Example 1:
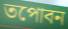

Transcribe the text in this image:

তপোবন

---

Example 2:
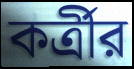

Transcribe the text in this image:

কর্ত্রীর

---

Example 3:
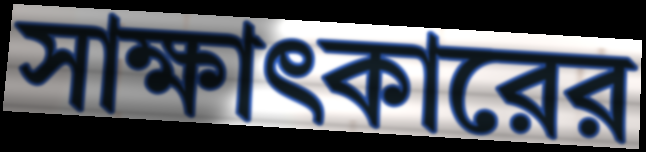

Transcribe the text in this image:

সাক্ষাৎকারের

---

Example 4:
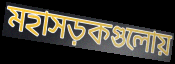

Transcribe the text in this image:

মহাসড়কগুলোয়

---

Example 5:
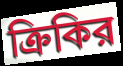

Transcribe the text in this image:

ক্রিকির